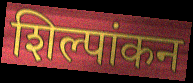
शिल्पांकन